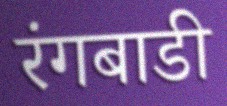
रंगबाडी